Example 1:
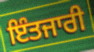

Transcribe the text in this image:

ਇੰਤਜਾਰੀ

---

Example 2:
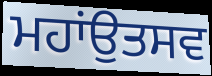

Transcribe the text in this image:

ਮਹਾਂਉਤਸਵ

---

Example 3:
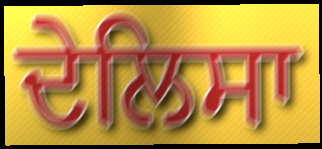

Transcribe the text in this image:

ਦੇਲਿਸਾ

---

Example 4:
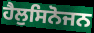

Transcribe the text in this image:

ਹੈਲੁਸਿਨੋਜਨ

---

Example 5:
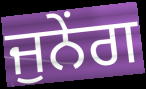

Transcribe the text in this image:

ਜੁਨੇਂਗ